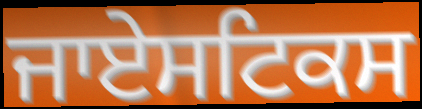
ਜਾਏਸਟਿਕਸ